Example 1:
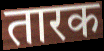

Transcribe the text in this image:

तारक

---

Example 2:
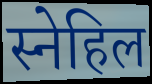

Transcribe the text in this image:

स्नेहिल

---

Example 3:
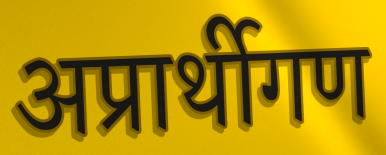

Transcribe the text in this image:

अप्रार्थीगण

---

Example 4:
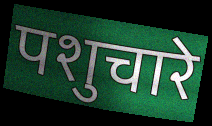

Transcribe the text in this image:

पशुचारे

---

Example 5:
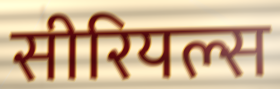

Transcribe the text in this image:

सीरियल्स